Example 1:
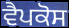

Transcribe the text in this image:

ਵੈਪਕੋਸ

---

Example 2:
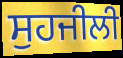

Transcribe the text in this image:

ਸੁਹਜੀਲੀ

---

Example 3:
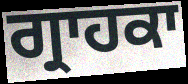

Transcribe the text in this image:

ਗ੍ਰਾਹਕਾ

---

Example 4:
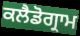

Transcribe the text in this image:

ਕਲੈਡੋਗ੍ਰਾਮ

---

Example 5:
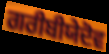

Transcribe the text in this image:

ਗਰੀਬੀਯੇਦੋਵ